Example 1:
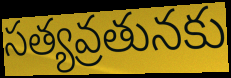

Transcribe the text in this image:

సత్యవ్రతునకు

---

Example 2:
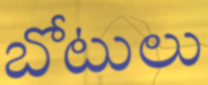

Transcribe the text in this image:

బోటులు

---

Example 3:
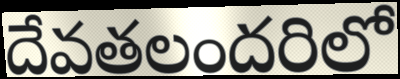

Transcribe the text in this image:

దేవతలందరిలో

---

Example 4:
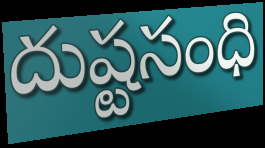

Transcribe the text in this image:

దుష్టసంధి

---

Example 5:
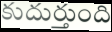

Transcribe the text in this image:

కుదుర్తుంది